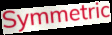
Symmetric